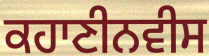
ਕਹਾਣੀਨਵੀਸ